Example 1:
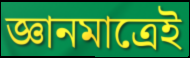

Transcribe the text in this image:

জ্ঞানমাত্রেই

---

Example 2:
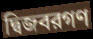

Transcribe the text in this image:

দ্বিজবরগণ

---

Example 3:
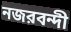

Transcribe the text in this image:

নজরবন্দী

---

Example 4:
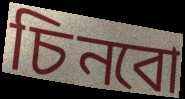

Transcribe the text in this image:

চিনবো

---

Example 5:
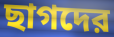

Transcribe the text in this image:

ছাগদের